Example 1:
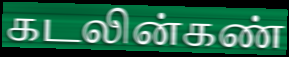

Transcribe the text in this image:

கடலின்கண்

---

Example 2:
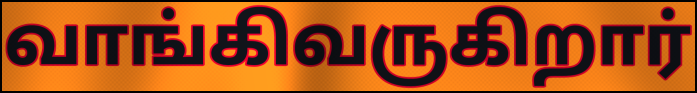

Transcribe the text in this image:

வாங்கிவருகிறார்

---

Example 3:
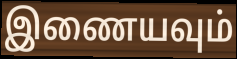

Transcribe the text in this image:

இணையவும்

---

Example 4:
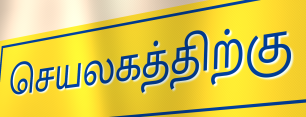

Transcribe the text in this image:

செயலகத்திற்கு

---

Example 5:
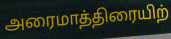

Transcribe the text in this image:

அரைமாத்திரையிற்